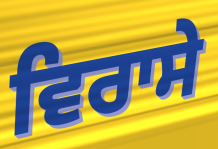
ਵਿਰਾਸੇ